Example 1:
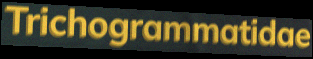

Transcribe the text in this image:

Trichogrammatidae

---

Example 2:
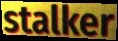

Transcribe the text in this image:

stalker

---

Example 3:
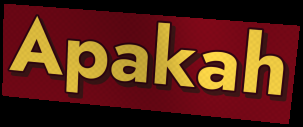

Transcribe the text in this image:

Apakah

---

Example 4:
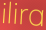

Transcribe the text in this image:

ilira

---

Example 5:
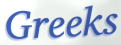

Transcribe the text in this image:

Greeks